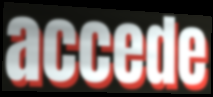
accede